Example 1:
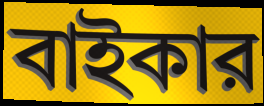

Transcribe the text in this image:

বাইকার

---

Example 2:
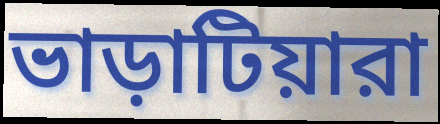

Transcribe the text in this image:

ভাড়াটিয়ারা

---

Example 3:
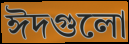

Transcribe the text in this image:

ঈদগুলো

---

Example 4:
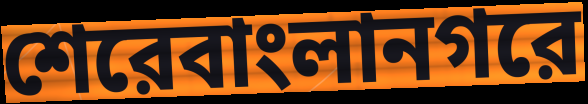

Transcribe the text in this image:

শেরেবাংলানগরে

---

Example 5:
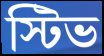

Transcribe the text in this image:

স্টিভ